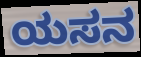
ಯಸನ